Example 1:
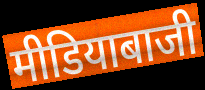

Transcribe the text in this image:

मीडियाबाजी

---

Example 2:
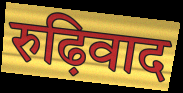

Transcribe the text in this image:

रुढ़िवाद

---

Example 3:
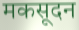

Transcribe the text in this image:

मकसूदन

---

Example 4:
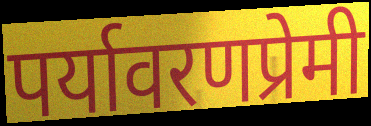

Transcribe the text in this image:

पर्यावरणप्रेमी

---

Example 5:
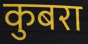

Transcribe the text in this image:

कुबरा